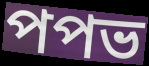
পপভ